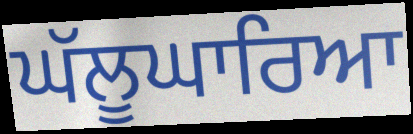
ਘੱਲੂਘਾਰਿਆ